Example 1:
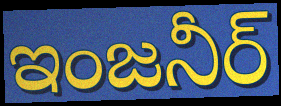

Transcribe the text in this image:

ఇంజనీర్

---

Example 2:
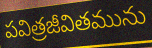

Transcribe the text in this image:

పవిత్రజీవితమును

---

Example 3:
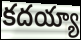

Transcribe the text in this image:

కదయ్యా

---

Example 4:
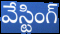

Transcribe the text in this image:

వేస్టింగ్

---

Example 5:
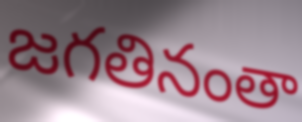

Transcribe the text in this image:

జగతినంతా